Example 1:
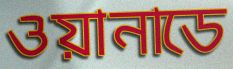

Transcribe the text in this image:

ওয়ানাডে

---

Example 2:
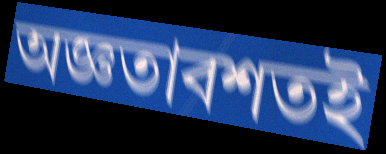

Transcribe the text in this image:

অজ্ঞতাবশতই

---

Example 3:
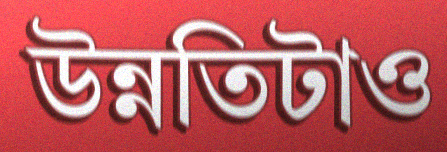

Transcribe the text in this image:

উন্নতিটাও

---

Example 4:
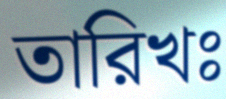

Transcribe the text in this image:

তারিখঃ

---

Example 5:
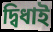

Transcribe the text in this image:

দ্বিধাই